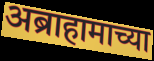
अब्राहामाच्या